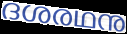
ദശരഥനു